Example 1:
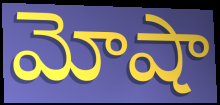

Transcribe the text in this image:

మోషా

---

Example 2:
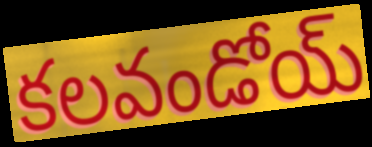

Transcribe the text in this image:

కలవండోయ్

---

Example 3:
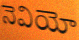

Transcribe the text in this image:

నెవియో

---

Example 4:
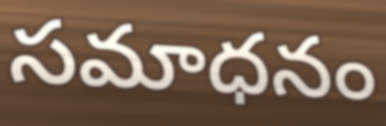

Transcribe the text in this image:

సమాధనం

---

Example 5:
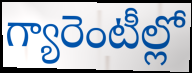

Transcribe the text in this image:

గ్యారెంటీల్లో